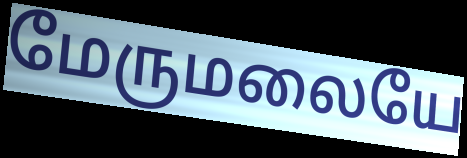
மேருமலையே